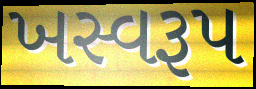
ખસ્વરૂપ